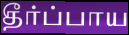
தீர்ப்பாய